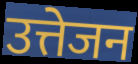
उत्तेजन